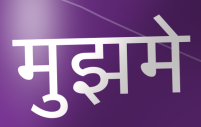
मुझमे